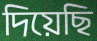
দিয়েছি